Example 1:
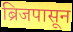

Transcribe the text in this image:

ब्रिजपासून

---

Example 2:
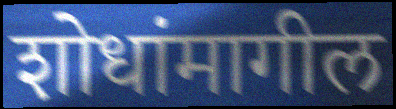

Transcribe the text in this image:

शोधांमागील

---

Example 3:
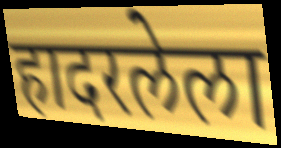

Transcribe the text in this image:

हादरलेला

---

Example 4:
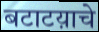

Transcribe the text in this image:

बटाटय़ाचे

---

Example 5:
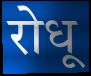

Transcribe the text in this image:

रोधू